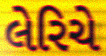
લેરિચે